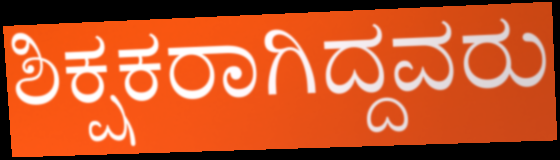
ಶಿಕ್ಷಕರಾಗಿದ್ದವರು